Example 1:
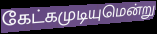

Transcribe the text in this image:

கேட்கமுடியுமென்று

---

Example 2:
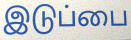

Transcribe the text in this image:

இடுப்பை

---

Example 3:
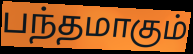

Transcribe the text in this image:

பந்தமாகும்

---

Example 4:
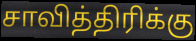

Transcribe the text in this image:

சாவித்திரிக்கு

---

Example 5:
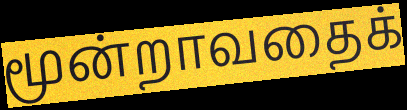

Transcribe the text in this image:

மூன்றாவதைக்